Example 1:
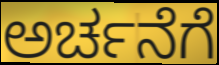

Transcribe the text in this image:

ಅರ್ಚನೆಗೆ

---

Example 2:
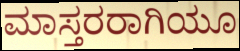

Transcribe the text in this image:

ಮಾಸ್ತರರಾಗಿಯೂ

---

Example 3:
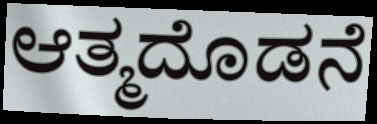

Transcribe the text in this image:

ಆತ್ಮದೊಡನೆ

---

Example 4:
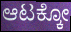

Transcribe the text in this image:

ಆಟಕ್ಕೋ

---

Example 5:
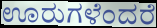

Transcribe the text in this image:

ಊರುಗಳೆಂದರೆ